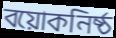
বয়োকনিষ্ঠ